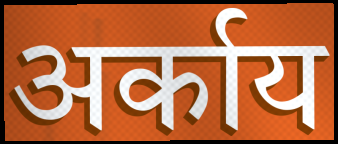
अर्काय